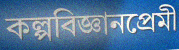
কল্পবিজ্ঞানপ্রেমী